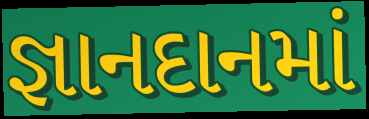
જ્ઞાનદાનમાં